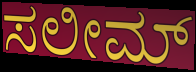
ಸಲೀಮ್